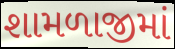
શામળાજીમાં